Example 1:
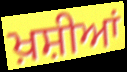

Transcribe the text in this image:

ਖ਼ਸ਼ੀਆਂ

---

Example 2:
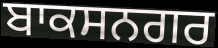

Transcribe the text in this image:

ਬਾਕਸਨਗਰ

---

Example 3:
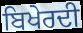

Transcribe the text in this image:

ਬਿਖੇਰਦੀ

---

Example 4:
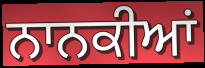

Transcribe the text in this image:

ਨਾਨਕੀਆਂ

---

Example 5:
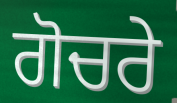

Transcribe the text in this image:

ਗੋਚਰੇ